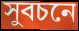
সুবচনে